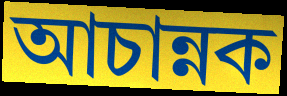
আচান্নক